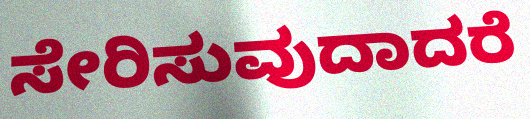
ಸೇರಿಸುವುದಾದರೆ